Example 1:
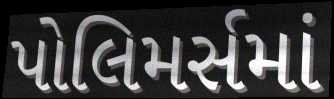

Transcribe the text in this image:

પોલિમર્સમાં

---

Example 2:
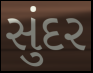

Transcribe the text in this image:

સુંદર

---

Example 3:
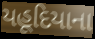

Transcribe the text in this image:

યહૂદિયાના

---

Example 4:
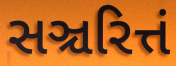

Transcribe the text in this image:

સઞ્ચરિત્તં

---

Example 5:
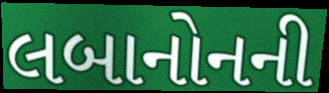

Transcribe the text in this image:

લબાનોનની